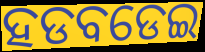
ହଡବଡେଇ